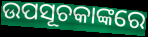
ଉପସୂଚକାଙ୍କରେ